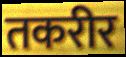
तकरीर